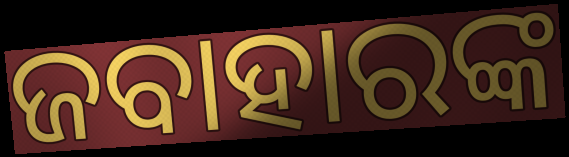
ଜବାହାରଙ୍କ